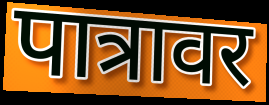
पात्रावर